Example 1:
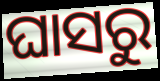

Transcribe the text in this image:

ଘାସରୁ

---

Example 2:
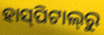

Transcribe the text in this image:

ହାସ୍‍ପିଟାଲ୍‍ରୁ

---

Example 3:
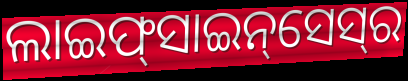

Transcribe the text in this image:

ଲାଇଫ୍‌ସାଇନ୍‌ସେସ୍‌ର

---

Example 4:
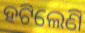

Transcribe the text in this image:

ହଟିଲେଣି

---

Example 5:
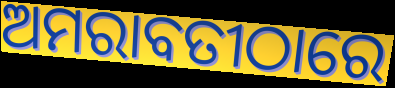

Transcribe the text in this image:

ଅମରାବତୀଠାରେ